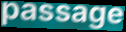
passage